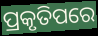
ପ୍ରକୃତିପରେ